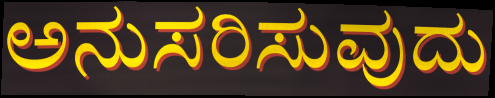
ಅನುಸರಿಸುವುದು